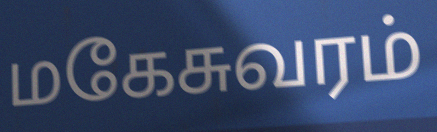
மகேசுவரம்